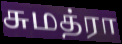
சுமத்ரா